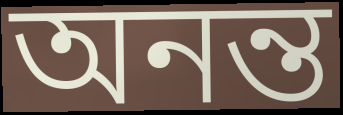
অনন্ত